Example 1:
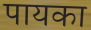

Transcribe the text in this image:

पायका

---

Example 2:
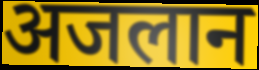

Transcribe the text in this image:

अजलान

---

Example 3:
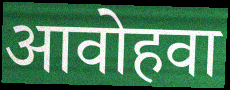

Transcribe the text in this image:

आवोहवा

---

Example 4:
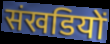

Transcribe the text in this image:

संखडियों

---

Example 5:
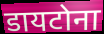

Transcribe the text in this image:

डायटोना